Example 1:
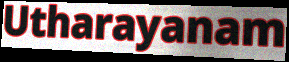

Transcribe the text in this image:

Utharayanam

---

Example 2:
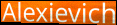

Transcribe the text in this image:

Alexievich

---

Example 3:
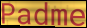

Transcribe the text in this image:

Padme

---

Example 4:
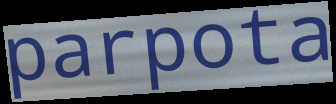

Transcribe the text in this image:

parpota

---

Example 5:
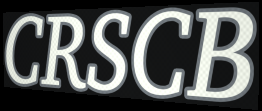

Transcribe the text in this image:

CRSCB